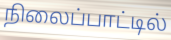
நிலைப்பாட்டில்